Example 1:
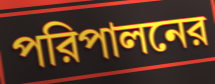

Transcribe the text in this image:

পরিপালনের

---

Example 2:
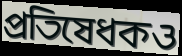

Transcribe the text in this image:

প্রতিষেধকও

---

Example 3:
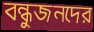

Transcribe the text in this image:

বন্ধুজনদের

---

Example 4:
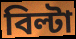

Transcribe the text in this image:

বিল্টা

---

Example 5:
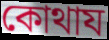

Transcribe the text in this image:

কোথায